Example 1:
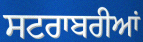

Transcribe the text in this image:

ਸਟਰਾਬਰੀਆਂ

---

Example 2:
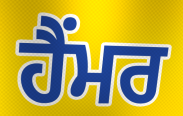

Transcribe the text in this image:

ਹੈਂਮਰ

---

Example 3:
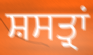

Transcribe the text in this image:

ਸ਼ਸਤ੍ਰਾਂ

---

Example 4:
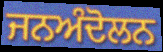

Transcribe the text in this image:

ਜਨਅੰਦੋਲਨ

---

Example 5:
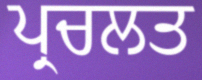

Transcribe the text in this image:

ਪ੍ਰਚਲਤ